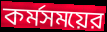
কর্মসময়ের